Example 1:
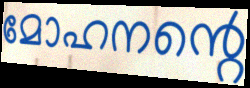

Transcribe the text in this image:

മോഹനന്റെ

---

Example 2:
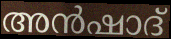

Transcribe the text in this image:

അൻഷാദ്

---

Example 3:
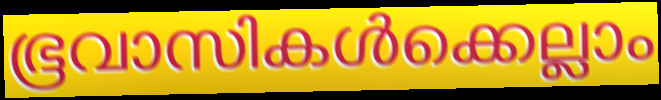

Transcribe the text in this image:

ഭൂവാസികൾക്കെല്ലാം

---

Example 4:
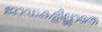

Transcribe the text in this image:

ജാഡകളില്ലാതെ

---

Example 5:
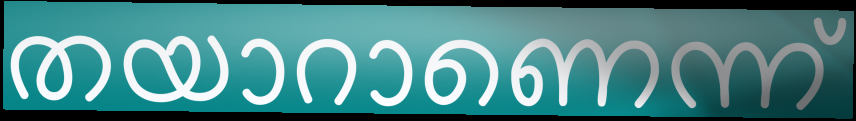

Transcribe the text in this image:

തയാറാണെന്ന്